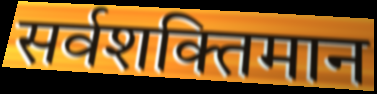
सर्वशक्‍तिमान